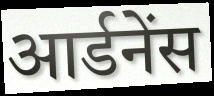
आर्डनेंस